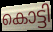
കൊട്ടി